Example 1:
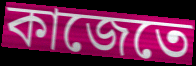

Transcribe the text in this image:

কাজেতে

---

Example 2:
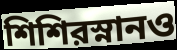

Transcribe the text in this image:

শিশিরস্নানও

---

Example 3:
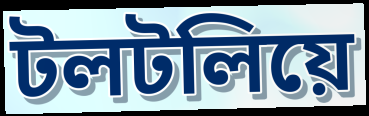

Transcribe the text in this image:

টলটলিয়ে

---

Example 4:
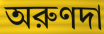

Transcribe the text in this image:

অরুণদা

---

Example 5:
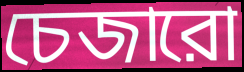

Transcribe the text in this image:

চেজারো